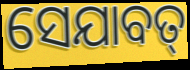
ସେଯାବତ୍